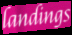
landings